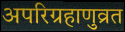
अपरिग्रहाणुव्रत